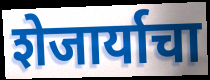
शेजार्याचा